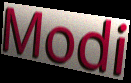
Modi